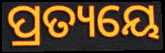
ପ୍ରତ୍ୟୟେ